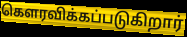
கௌரவிக்கப்படுகிறார்